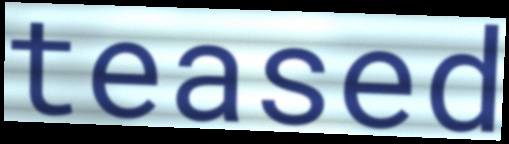
teased